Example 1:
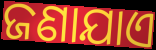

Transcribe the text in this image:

ଜଣାଯାଏ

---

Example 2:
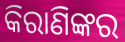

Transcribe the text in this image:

କିରାଣିଙ୍କର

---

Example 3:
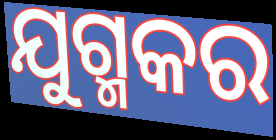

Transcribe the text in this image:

ଯୁଗ୍ମକର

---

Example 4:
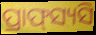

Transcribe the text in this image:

ପ୍ରାଫ୍‌ସ୍ୟସି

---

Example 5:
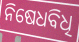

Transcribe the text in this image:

ନିଷେଧବିଧି